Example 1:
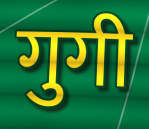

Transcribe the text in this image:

गुगी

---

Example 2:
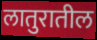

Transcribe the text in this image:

लातुरातील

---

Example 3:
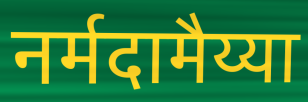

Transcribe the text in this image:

नर्मदामैय्या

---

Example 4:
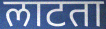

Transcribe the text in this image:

लाटता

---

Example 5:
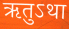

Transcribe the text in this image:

ऋतुऽथा